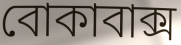
বোকাবাক্স